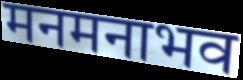
मनमनाभव